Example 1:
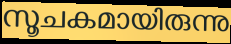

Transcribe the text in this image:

സൂചകമായിരുന്നു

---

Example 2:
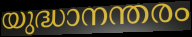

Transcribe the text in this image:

യുദ്ധാനന്തരം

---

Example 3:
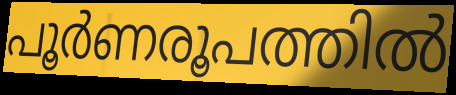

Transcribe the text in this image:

പൂർണരൂപത്തിൽ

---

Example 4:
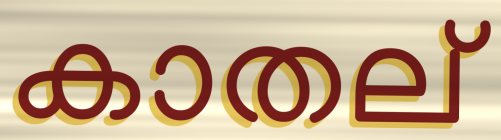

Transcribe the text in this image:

കാതല്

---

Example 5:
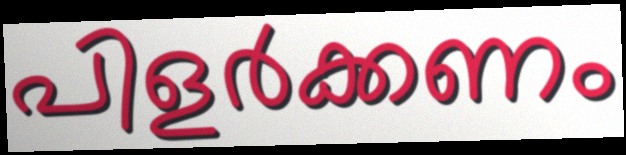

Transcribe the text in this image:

പിളർക്കണം